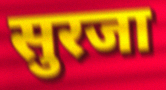
सुरजा